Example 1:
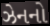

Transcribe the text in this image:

ઝેનનો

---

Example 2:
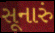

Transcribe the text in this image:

સૂનારું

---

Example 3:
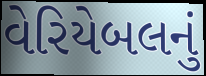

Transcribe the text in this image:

વેરિયેબલનું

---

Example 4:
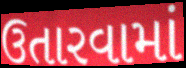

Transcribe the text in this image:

ઉતારવામાં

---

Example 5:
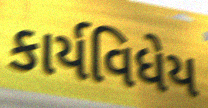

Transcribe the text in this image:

કાર્યવિધેય